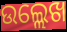
ଉଲ୍ଲେଖ